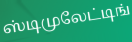
ஸ்டிமுலேட்டிங்